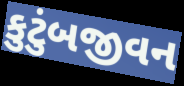
કુટુંબજીવન